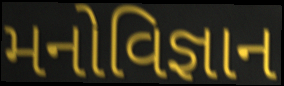
મનોવિજ્ઞાન